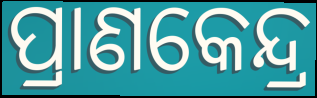
ପ୍ରାଣକେନ୍ଦ୍ର